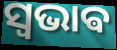
ସ୍ଵଭାଵ